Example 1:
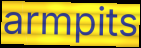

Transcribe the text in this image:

armpits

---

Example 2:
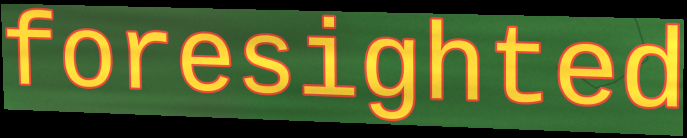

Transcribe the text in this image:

foresighted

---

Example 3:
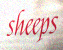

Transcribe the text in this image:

sheeps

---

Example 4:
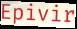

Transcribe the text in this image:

Epivir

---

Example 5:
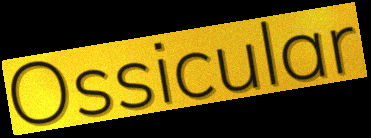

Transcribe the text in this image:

Ossicular